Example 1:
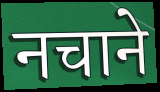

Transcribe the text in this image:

नचाने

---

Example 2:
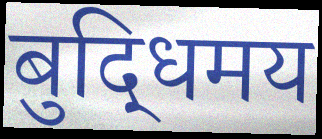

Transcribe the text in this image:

बुद्धिमय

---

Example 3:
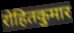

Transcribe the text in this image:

रोहितकुमार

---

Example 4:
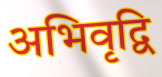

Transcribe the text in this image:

अभिवृद्वि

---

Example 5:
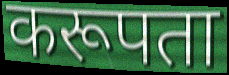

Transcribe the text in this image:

करूपता